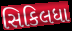
સિકિલધા